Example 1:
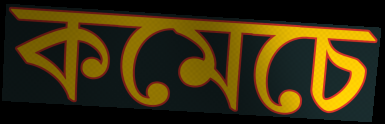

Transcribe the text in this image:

কমেচে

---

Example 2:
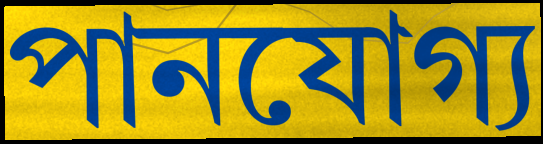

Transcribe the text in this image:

পানযোগ্য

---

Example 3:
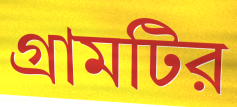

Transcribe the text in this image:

গ্রামটির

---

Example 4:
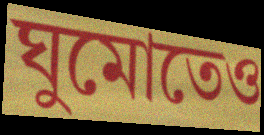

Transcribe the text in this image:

ঘুমোতেও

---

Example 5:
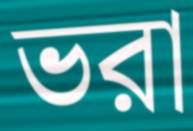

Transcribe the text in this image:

ভরা